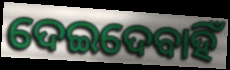
ଦେଇଦେବାହିଁ